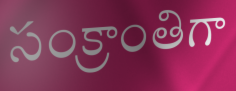
సంక్రాంతిగా